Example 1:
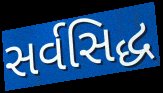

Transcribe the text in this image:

સર્વસિદ્ધ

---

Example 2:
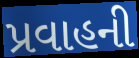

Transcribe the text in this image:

પ્રવાહની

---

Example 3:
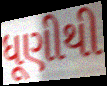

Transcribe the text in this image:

ધૂણીથી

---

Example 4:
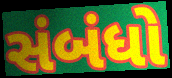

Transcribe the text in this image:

સંબંધો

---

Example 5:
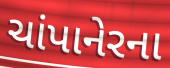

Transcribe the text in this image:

ચાંપાનેરના